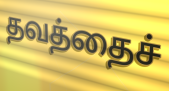
தவத்தைச்